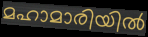
മഹാമാരിയിൽ